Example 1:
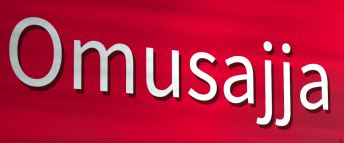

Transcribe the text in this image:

Omusajja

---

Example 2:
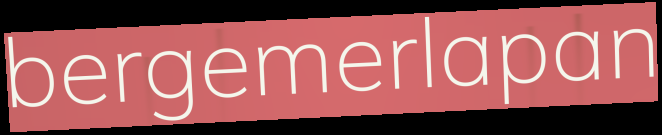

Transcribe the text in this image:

bergemerlapan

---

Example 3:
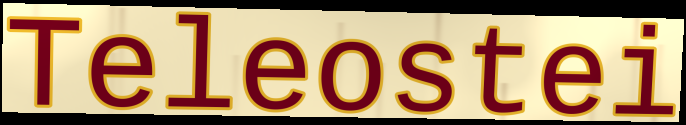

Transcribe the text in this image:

Teleostei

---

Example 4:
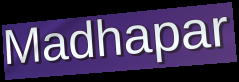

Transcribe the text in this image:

Madhapar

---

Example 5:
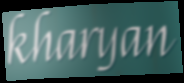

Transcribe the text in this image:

kharyan